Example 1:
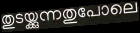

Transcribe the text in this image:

തുടയ്ക്കുന്നതുപോലെ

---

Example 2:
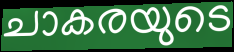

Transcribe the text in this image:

ചാകരയുടെ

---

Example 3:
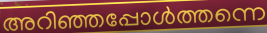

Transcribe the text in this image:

അറിഞ്ഞപ്പോൾത്തന്നെ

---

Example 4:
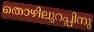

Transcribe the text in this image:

തൊഴിലുറപ്പിനു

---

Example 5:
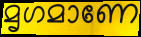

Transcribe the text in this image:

മൃഗമാണേ